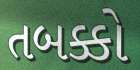
તબક્કો